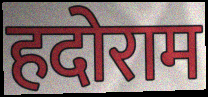
हदोराम